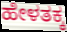
ಹೇಳತಕ್ಕ